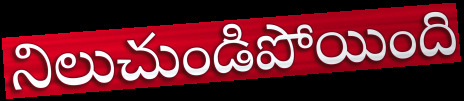
నిలుచుండిపోయింది